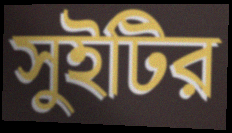
সুইটির